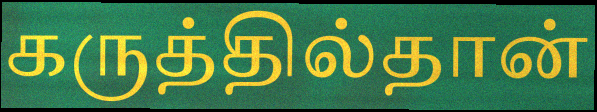
கருத்தில்தான்